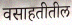
वसाहतीतील